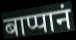
बाप्पानं